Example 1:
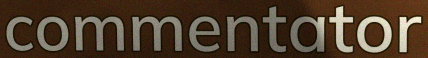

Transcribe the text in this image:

commentator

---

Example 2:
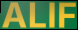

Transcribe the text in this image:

ALIF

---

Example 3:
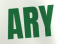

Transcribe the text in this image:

ARY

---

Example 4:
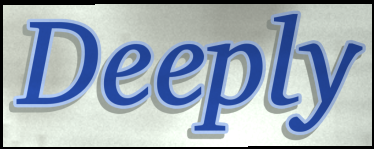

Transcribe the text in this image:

Deeply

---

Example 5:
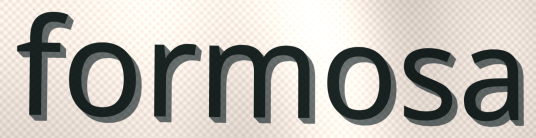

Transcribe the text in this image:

formosa